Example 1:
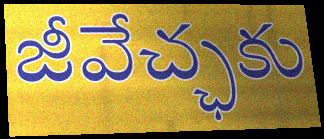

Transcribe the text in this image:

జీవేచ్ఛకు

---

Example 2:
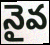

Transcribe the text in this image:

నైవ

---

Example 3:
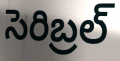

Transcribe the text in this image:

సెరిబ్రల్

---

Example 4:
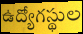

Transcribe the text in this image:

ఉద్యోగస్థుల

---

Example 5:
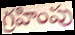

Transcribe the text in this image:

గ్రహింపు